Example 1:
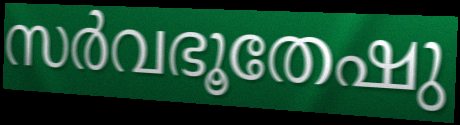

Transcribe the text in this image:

സർവഭൂതേഷു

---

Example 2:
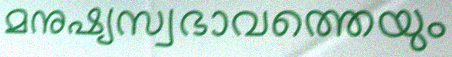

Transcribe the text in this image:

മനുഷ്യസ്വഭാവത്തെയും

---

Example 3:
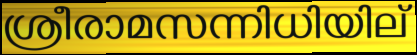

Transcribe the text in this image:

ശ്രീരാമസന്നിധിയില്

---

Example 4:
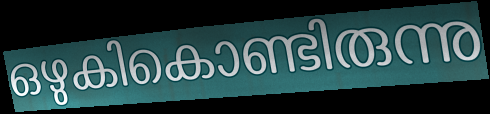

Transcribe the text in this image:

ഒഴുകികൊണ്ടിരുന്നു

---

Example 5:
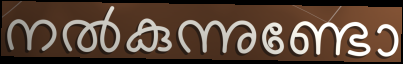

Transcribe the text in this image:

നൽകുന്നുണ്ടോ